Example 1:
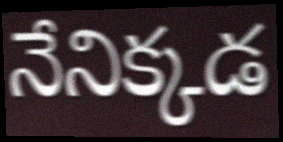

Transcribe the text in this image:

నేనిక్కడ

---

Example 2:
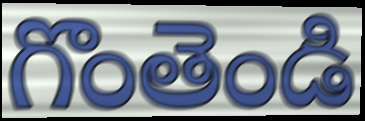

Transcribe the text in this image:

గొంతెండి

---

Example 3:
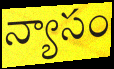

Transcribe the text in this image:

న్యాసం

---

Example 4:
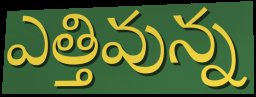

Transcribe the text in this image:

ఎత్తివున్న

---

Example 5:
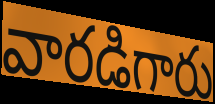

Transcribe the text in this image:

వారడిగారు